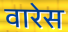
वारेस